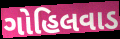
ગોહિલવાડ